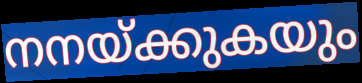
നനയ്ക്കുകയും